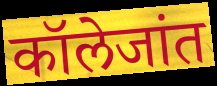
कॉलेजांत